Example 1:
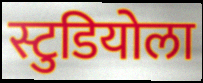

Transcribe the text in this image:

स्टुडियोला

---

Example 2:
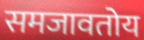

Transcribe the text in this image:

समजावतोय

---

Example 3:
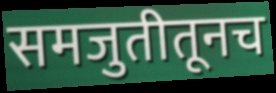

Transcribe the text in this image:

समजुतीतूनच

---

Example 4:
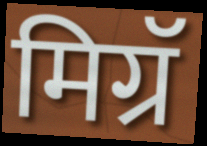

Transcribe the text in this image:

मिग्रॅ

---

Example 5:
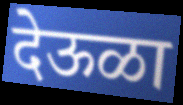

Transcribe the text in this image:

देऊळा